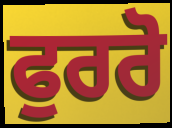
ਫੁਰਰੋ